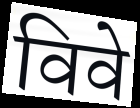
विवे